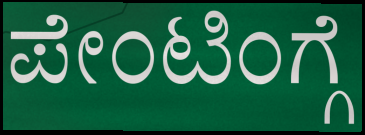
ಪೇಂಟಿಂಗ್ಗೆ